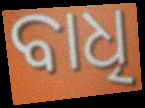
ବାଧି